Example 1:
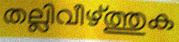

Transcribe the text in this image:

തല്ലിവീഴ്ത്തുക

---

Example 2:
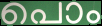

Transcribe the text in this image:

പൊം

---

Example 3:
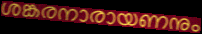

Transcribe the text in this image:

ശങ്കരനാരായണനും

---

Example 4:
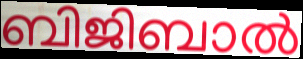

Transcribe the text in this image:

ബിജിബാൽ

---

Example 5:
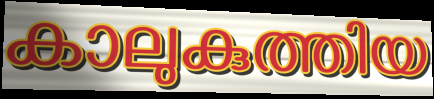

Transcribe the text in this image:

കാലുകുത്തിയ